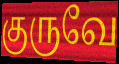
குருவே